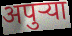
अपुर्‍या